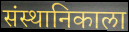
संस्थानिकाला